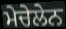
ਮੇਚੇਲੇਨ